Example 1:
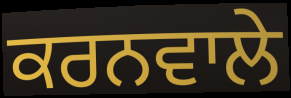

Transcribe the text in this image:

ਕਰਨਵਾਲੇ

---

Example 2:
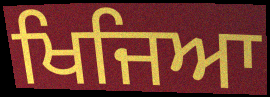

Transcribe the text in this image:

ਖਿਜਿਆ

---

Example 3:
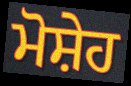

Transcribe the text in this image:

ਮੋਸ਼ੇਹ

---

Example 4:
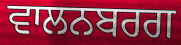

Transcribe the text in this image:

ਵਾਲਨਬਰਗ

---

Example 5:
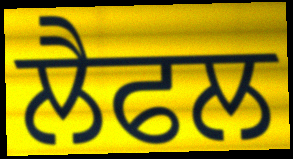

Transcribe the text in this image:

ਲੈਫਲ